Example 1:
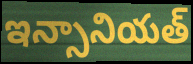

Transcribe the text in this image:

ఇన్సానియత్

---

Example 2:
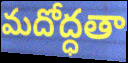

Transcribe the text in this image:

మదోద్ధతా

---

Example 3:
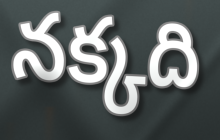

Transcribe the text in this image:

నక్కది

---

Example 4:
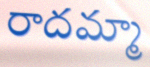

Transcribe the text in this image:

రాదమ్మా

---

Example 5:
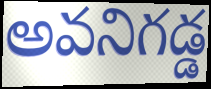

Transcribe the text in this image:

అవనిగడ్డ